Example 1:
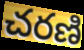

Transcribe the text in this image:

చరణి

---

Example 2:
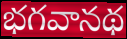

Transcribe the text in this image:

భగవానథ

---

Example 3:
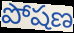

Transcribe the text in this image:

పోషణ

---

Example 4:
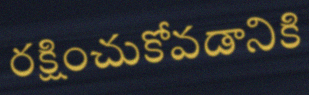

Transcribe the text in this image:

రక్షించుకోవడానికి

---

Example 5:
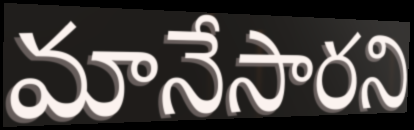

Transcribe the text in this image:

మానేసారని